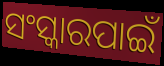
ସଂସ୍କାରପାଇଁ